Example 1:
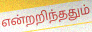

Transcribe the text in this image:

என்றறிந்ததும்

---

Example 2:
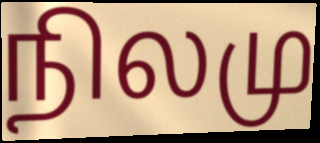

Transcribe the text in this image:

நிலமு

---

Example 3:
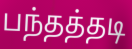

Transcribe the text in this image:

பந்தத்தடி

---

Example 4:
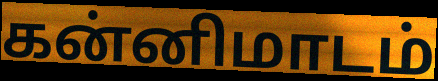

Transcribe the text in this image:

கன்னிமாடம்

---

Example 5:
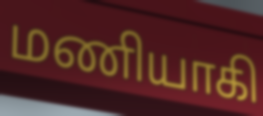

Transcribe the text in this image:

மணியாகி